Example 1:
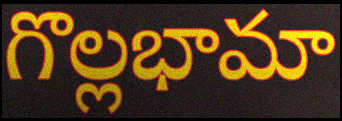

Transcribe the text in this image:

గొల్లభామా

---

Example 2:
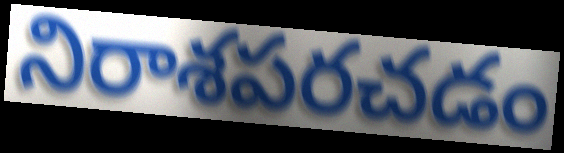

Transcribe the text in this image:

నిరాశపరచడం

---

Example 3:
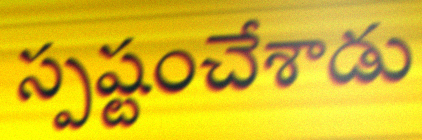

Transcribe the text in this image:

స్పష్టంచేశాడు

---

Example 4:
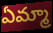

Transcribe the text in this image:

ఏమ్మా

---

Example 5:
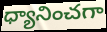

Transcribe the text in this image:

ధ్యానించగా